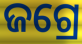
ଜଗ୍ରେ